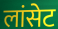
लांसेट